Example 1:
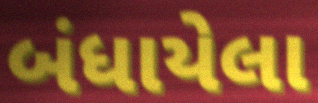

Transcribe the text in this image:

બંધાયેલા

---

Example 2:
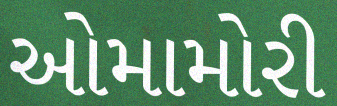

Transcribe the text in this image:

ઓમામોરી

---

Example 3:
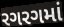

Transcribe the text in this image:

રગરગમાં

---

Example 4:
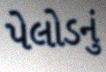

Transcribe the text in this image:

પેલોડનું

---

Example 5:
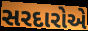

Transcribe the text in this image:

સરદારોએ